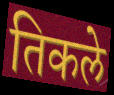
तिकले